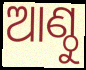
ଆଣ୍ଠୁ